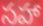
సహా